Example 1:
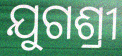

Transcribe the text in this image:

ଯୁଗଶ୍ରୀ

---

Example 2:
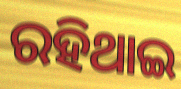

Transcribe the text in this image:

ରହିଥାଇ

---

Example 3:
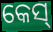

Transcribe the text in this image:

କେସ୍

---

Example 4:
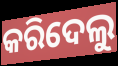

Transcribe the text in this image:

କରିଦେଲୁ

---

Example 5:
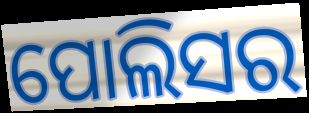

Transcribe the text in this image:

ପୋଲିସର